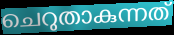
ചെറുതാകുന്നത്